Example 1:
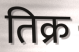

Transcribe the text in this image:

तिक्र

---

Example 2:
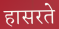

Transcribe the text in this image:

हासरते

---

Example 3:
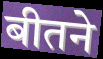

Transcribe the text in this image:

बीतने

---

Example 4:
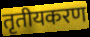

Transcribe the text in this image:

तृतीयकरण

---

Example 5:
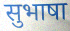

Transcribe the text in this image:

सुभाषा